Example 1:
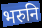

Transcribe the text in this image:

भरुनि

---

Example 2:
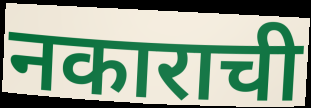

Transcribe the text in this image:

नकाराची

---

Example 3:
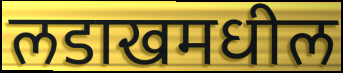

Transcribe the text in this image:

लडाखमधील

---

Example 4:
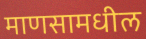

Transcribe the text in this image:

माणसामधील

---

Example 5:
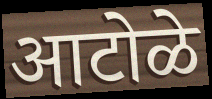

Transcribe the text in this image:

आटोळे